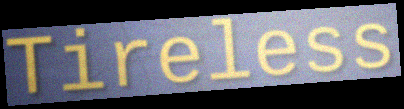
Tireless